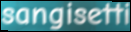
sangisetti